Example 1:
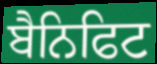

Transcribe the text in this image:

ਬੈਨਿਫਿਟ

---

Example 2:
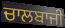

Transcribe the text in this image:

ਚਾਲਬਾਜੀ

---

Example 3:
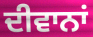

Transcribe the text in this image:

ਦੀਵਾਨਾਂ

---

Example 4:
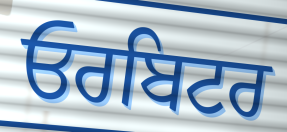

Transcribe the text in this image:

ਓਰਬਿਟਰ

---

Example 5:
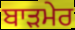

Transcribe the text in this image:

ਬਾੜਮੇਰ